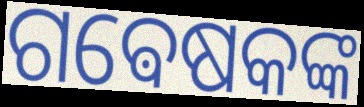
ଗଵେଷକଙ୍କ